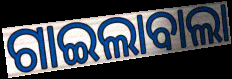
ଗାଇଲାବାଲା